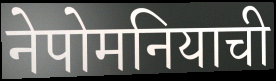
नेपोमनियाची